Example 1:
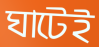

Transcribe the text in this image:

ঘাটেই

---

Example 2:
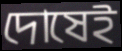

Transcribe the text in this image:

দোষেই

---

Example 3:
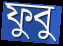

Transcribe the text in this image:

ফুবু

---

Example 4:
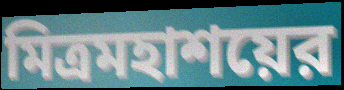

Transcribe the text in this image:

মিত্রমহাশয়ের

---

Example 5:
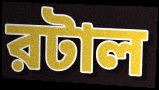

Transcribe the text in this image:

রটাল